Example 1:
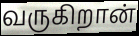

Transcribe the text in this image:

வருகிறான்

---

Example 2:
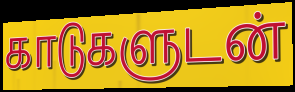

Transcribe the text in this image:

காடுகளுடன்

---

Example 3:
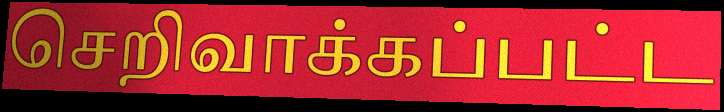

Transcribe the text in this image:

செறிவாக்கப்பட்ட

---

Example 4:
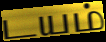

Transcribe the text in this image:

டயம்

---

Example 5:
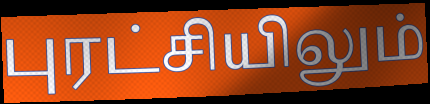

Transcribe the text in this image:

புரட்சியிலும்